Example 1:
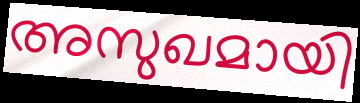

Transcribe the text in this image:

അസുഖമായി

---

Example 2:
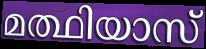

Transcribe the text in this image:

മത്ഥിയാസ്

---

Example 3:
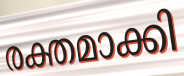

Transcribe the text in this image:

രക്തമാക്കി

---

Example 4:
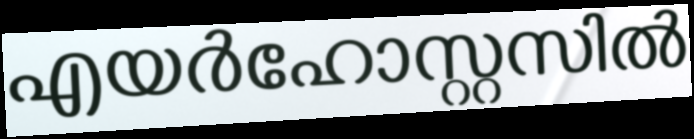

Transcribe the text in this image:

എയർഹോസ്റ്റസിൽ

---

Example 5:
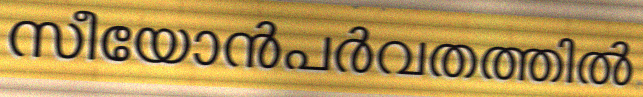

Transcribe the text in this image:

സീയോൻപർവതത്തിൽ